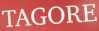
TAGORE